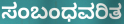
ಸಂಬಂಧವರಿತ